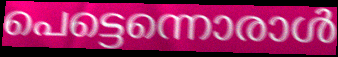
പെട്ടെന്നൊരാൾ